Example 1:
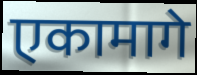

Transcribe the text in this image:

एकामागे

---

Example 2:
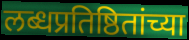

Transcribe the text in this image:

लब्धप्रतिष्ठितांच्या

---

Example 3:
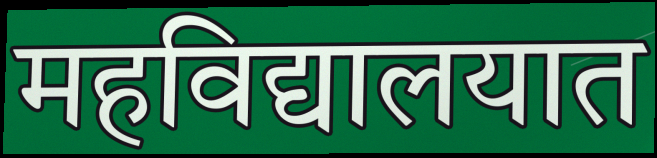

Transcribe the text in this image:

महविद्यालयात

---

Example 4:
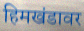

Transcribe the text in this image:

हिमखंडावर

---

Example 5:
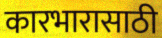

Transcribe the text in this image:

कारभारासाठी